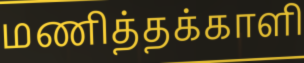
மணித்தக்காளி